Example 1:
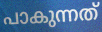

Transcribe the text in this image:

പാകുന്നത്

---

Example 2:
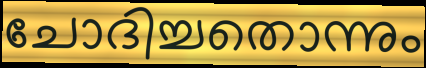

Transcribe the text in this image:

ചോദിച്ചതൊന്നും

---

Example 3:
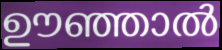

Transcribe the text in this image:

ഊഞ്ഞാൽ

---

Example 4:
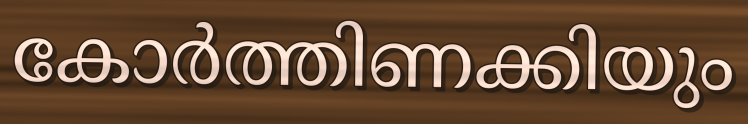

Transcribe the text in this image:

കോർത്തിണക്കിയും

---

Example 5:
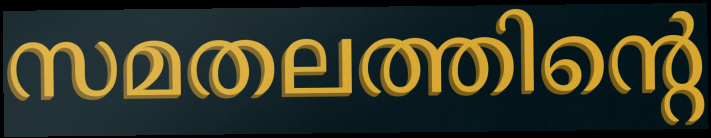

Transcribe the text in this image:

സമതലത്തിന്റെ